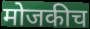
मोजकीच